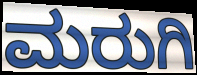
ಮರುಗಿ